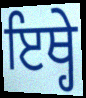
ਇਥ੍ਹੇ